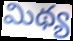
మిథ్య